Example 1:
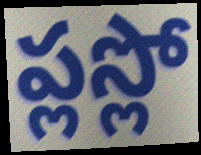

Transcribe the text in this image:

ప్లస్లో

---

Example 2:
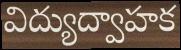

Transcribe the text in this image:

విద్యుద్వాహక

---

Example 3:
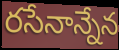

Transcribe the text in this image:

రసేనాన్నేన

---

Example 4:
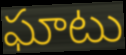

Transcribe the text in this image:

ఘాటు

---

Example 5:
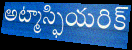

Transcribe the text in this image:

అట్మాస్ఫియరిక్